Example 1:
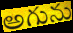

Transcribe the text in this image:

అగును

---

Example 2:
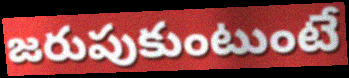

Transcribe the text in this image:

జరుపుకుంటుంటే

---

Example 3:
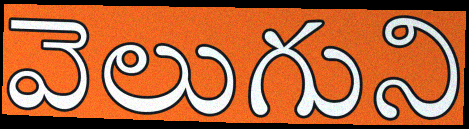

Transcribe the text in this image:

వెలుగుని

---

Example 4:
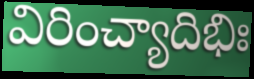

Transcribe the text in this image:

విరించ్యాదిభిః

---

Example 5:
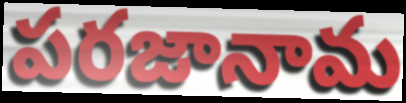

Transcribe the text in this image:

పరజానామ